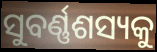
ସୁବର୍ଣ୍ଣଶସ୍ୟକୁ